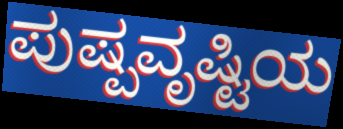
ಪುಷ್ಪವೃಷ್ಟಿಯ